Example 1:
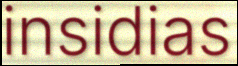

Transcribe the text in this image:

insidias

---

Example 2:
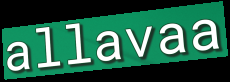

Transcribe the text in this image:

allavaa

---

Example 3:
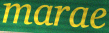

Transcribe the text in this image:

marae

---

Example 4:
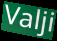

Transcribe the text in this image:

Valji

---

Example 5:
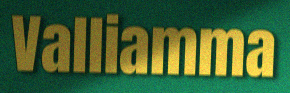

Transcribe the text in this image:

Valliamma